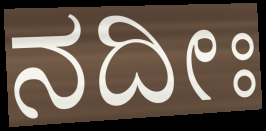
ನದೀಃ